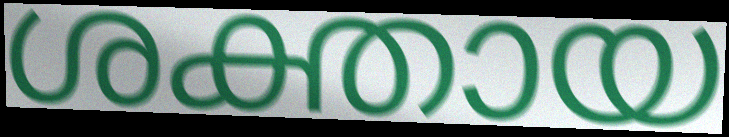
ശക്തായ